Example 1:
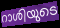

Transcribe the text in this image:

റാശിയുടെ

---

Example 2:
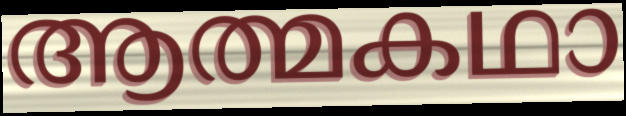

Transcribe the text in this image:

ആത്മകഥാ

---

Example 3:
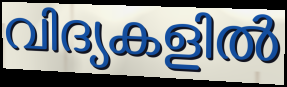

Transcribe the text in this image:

വിദ്യകളിൽ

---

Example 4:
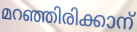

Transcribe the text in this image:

മറഞ്ഞിരിക്കാന്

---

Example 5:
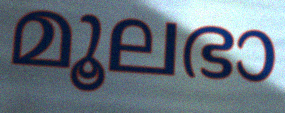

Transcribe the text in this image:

മൂലഭാ